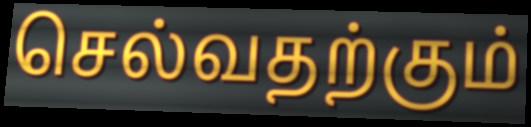
செல்வதற்கும்